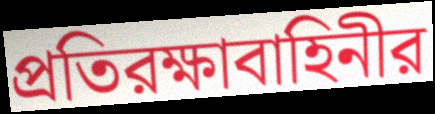
প্রতিরক্ষাবাহিনীর